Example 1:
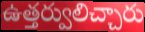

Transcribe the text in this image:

ఉత్తర్వులిచ్చారు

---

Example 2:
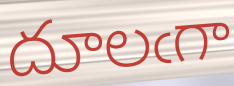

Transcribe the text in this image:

దూలఁగా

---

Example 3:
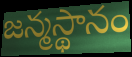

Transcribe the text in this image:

జన్మస్థానం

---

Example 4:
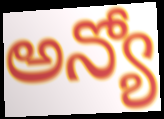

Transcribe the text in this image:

అన్యో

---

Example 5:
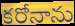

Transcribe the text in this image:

కరోనాను